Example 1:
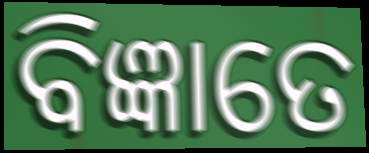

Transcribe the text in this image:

ବିଜ୍ଞାତେ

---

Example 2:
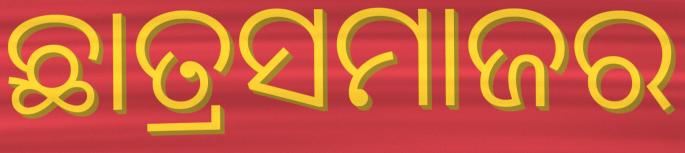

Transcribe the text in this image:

ଛାତ୍ରସମାଜର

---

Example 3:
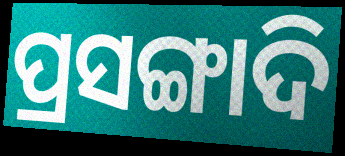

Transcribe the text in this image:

ପ୍ରସଙ୍ଗାଦି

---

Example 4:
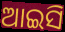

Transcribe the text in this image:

ଆଇସି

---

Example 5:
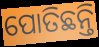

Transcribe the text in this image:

ପୋତିଛନ୍ତି